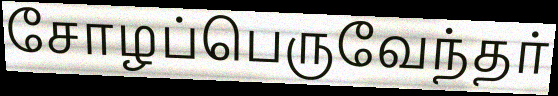
சோழப்பெருவேந்தர்